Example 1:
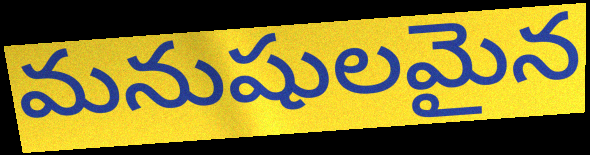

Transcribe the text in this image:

మనుషులమైన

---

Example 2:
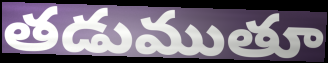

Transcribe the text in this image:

తడుముతూ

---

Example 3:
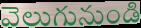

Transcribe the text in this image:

వెలుగునుండి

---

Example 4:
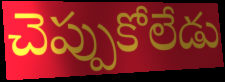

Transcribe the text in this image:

చెప్పుకోలేడు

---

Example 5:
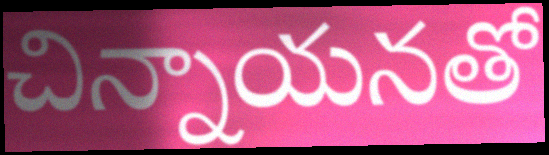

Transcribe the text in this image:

చిన్నాయనతో